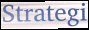
Strategi